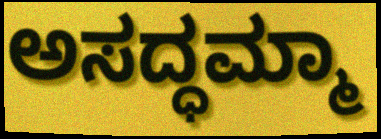
ಅಸದ್ಧಮ್ಮಾ